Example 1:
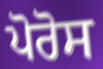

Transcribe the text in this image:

ਪੋਰੋਸ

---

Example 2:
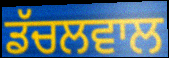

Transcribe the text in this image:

ਡੱਚਲਵਾਲ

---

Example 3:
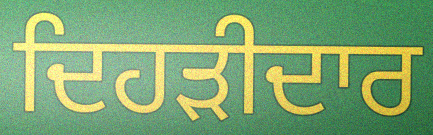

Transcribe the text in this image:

ਦਿਹੜੀਦਾਰ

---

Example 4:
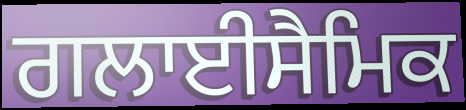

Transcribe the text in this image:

ਗਲਾਈਸੈਮਿਕ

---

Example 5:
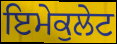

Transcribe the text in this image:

ਇਮੇਕੁਲੇਟ